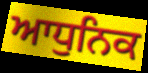
ਆਧੁਨਿਕ